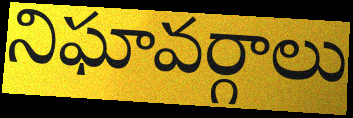
నిఘావర్గాలు